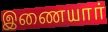
இணையார்